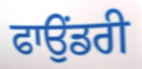
ਫਾਉਂਡਰੀ